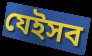
যেইসব